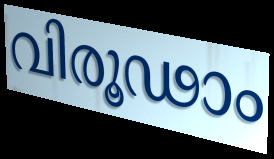
വിരൂഢാം